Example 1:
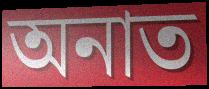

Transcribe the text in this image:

অনাত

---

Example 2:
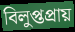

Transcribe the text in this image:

বিলুপ্তপ্ৰায়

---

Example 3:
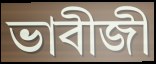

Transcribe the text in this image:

ভাবীজী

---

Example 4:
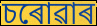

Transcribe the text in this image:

চৰোৱাৰ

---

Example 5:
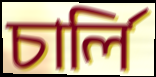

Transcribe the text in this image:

চাৰ্লি